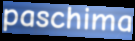
paschima